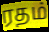
ரதம்